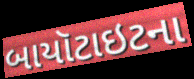
બાયૉટાઇટના